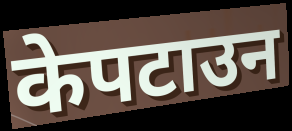
केपटाउन